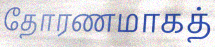
தோரணமாகத்